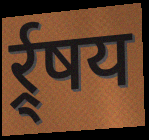
र्र्र्षय